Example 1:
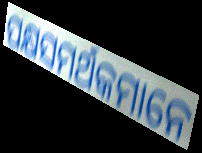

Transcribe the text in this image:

ପକ୍ଷସମର୍ଥକମାନେ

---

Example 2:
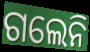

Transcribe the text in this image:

ଗଲେନି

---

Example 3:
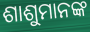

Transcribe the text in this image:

ଶାଶୁମାନଙ୍କ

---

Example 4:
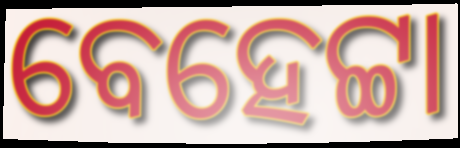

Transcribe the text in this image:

ବେହେଟ୍ଟା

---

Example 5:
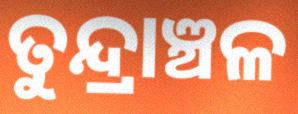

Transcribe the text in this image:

ତୁନ୍ଦ୍ରାଞ୍ଚଳ